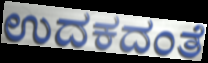
ಉದಕದಂತೆ